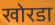
खोरडा